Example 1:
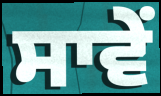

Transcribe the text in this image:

ਸਾਵੇਂ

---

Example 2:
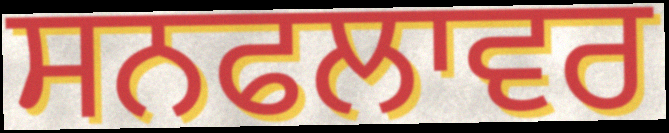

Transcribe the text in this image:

ਸਨਫਲਾਵਰ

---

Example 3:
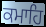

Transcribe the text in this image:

ਕਮਾਹਿ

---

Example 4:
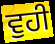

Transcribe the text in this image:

ਵੁਹੀ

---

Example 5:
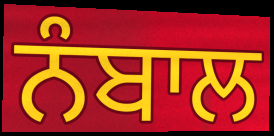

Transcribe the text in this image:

ਨੰਬਾਲ